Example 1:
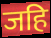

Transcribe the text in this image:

जहि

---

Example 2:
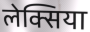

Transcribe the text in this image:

लेक्सिया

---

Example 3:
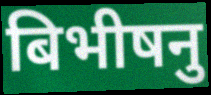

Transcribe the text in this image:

बिभीषनु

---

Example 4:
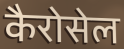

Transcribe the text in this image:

कैरोसेल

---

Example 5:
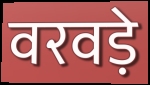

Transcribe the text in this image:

वरवड़े